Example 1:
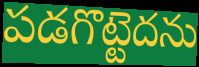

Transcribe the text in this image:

పడగొట్టెదను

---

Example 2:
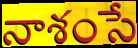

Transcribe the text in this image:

నాశంసే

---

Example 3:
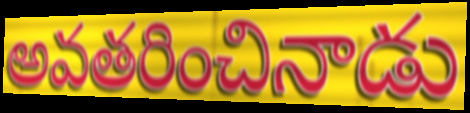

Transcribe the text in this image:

అవతరించినాడు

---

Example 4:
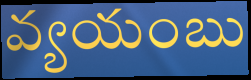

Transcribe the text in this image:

వ్యయంబు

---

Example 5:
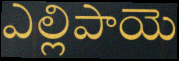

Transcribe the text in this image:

ఎల్లిపాయె